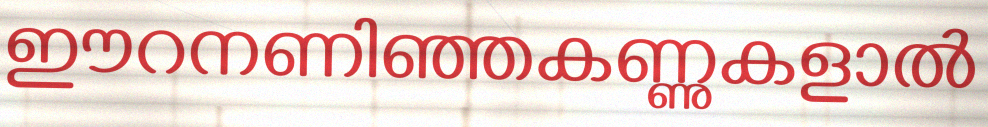
ഈറനണിഞ്ഞകണ്ണുകളാൽ